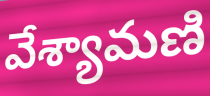
వేశ్యామణి